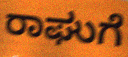
ರಾಘುಗೆ